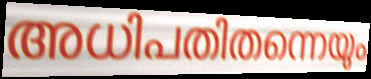
അധിപതിതന്നെയും